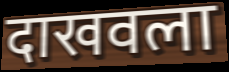
दाखवला